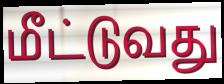
மீட்டுவது